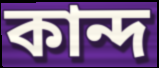
কান্দ